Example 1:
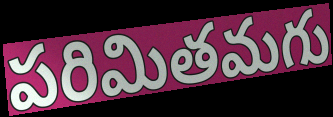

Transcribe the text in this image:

పరిమితమగు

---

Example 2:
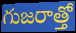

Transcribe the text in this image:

గుజరాత్తో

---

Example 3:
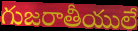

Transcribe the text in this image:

గుజరాతీయులే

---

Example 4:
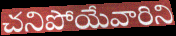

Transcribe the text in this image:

చనిపోయేవారిని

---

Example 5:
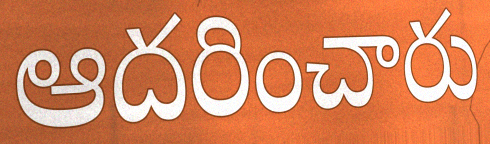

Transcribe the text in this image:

ఆదరించారు